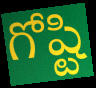
గోష్టి